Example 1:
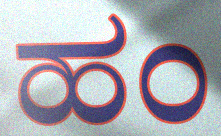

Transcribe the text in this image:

ಹಂ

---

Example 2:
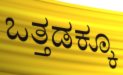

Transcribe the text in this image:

ಒತ್ತಡಕ್ಕೂ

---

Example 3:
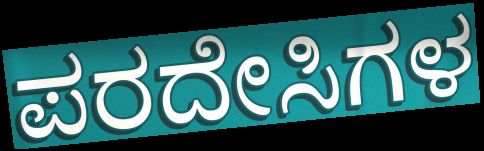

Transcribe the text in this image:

ಪರದೇಸಿಗಳ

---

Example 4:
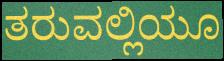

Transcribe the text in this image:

ತರುವಲ್ಲಿಯೂ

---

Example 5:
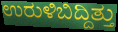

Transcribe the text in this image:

ಉರುಳಿಬಿದ್ದಿತ್ತು